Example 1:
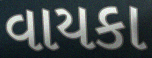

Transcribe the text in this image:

વાયકા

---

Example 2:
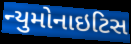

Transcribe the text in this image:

ન્યુમોનાઇટિસ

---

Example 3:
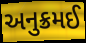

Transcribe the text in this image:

અનુક્રમઈ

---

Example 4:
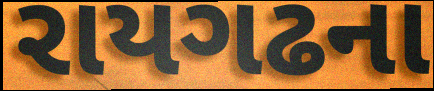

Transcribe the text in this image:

રાયગઢના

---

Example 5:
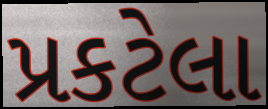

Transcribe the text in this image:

પ્રકટેલા